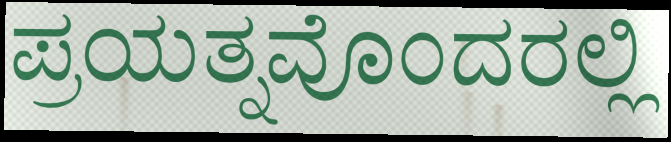
ಪ್ರಯತ್ನವೊಂದರಲ್ಲಿ